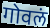
गोवलं